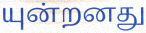
யுன்றனது